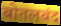
बोतलबंद